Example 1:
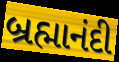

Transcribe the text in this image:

બ્રહ્માનંદી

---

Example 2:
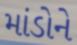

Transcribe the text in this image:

માંડોને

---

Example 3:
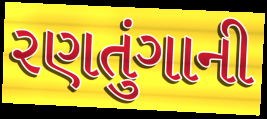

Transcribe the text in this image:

રણતુંગાની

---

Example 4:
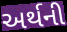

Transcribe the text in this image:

અર્થની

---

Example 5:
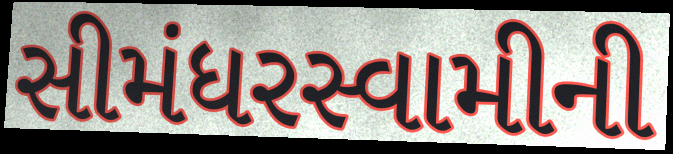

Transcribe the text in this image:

સીમંધરસ્વામીની